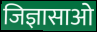
जिज्ञासाओ